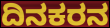
ದಿನಕರನ